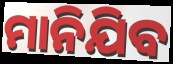
ମାନିଯିବ